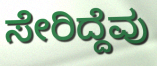
ಸೇರಿದ್ದೆವು